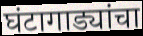
घंटागाड्यांचा